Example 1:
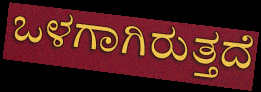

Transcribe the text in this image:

ಒಳಗಾಗಿರುತ್ತದೆ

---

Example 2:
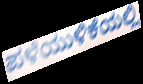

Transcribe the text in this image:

ಪಳೆಯುಳಿಕೆಯಲ್ಲಿ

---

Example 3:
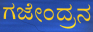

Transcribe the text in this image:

ಗಜೇಂದ್ರನ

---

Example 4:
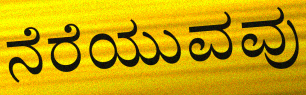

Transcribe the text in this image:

ನೆರೆಯುವವು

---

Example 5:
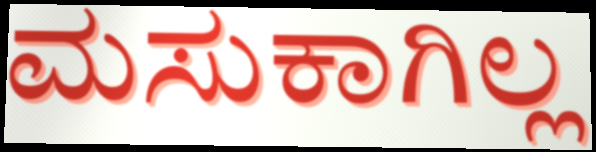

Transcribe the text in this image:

ಮಸುಕಾಗಿಲ್ಲ